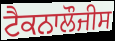
ਟੈਕਨਾਲੌਜੀਸ